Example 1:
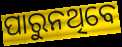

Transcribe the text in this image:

ପାରୁନଥିବେ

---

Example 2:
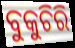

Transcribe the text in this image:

ବୁକୁଚିରି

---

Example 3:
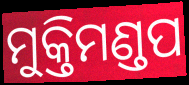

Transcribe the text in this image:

ମୁକ୍ତିମଣ୍ଡପ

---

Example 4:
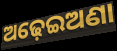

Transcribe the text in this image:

ଅଢ଼େଇଅଣା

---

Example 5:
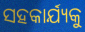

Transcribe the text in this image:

ସହକାର୍ଯ୍ୟକୁ